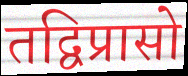
तद्विप्रासो